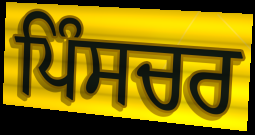
ਪਿੰਸਚਰ